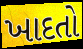
ખાદતો